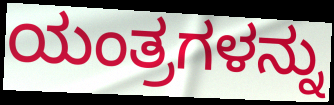
ಯಂತ್ರಗಳನ್ನು